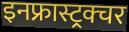
इनफ्रास्ट्रक्चर